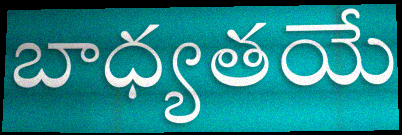
బాధ్యతయే